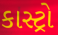
કાસ્ટ્રો